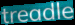
treadle